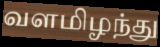
வளமிழந்து